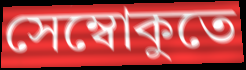
সেম্বোকুতে